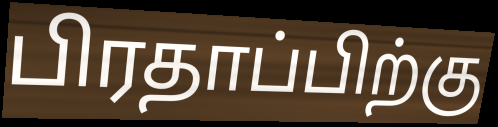
பிரதாப்பிற்கு